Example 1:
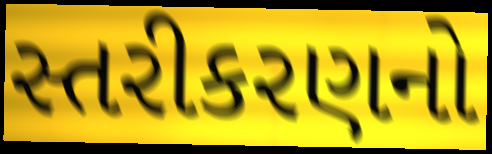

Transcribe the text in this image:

સ્તરીકરણનો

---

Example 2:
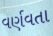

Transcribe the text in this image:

વર્ણવતા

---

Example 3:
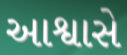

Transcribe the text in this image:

આશ્વાસે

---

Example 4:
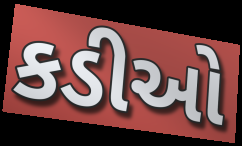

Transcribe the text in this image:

કડીઓ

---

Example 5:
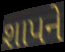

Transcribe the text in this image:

શાપને